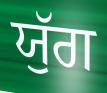
ਯੁੱਗ